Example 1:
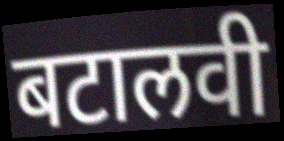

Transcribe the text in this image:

बटालवी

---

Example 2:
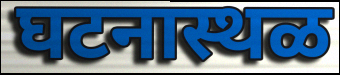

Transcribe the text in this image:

घटनास्थळ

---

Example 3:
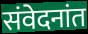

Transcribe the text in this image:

संवेदनांत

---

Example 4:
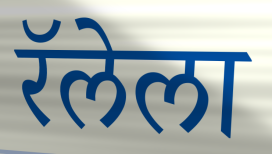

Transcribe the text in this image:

रॅलेला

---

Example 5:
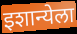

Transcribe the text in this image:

इशान्येला